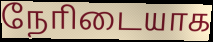
நேரிடையாக